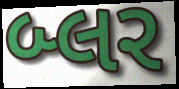
બ્લર